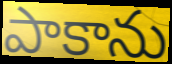
పాకాను